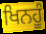
ਖਿਨਹੂੰ